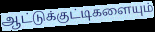
ஆட்டுக்குட்டிகளையும்